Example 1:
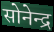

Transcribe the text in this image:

सोनेन्द्र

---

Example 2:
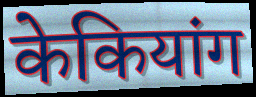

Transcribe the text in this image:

केकियांग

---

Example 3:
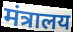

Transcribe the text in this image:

मंत्रालय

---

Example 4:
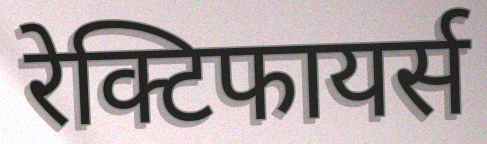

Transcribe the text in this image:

रेक्टिफायर्स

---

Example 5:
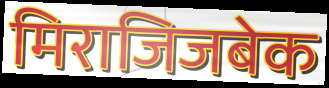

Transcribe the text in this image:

मिराजिजबेक